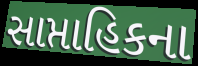
સાપ્તાહિકના